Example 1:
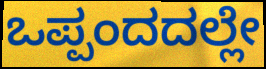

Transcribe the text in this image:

ಒಪ್ಪಂದದಲ್ಲೇ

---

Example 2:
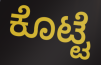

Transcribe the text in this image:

ಕೊಟ್ಟೆ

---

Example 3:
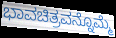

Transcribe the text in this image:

ಭಾವಚಿತ್ರವನ್ನೊಮ್ಮೆ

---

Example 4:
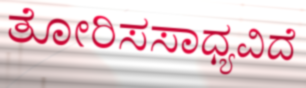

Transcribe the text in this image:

ತೋರಿಸಸಾಧ್ಯವಿದೆ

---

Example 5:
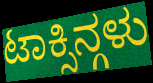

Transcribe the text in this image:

ಟಾಕ್ಸಿನ್ಗಳು